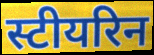
स्टीयरिन